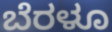
ಬೆರಳೂ